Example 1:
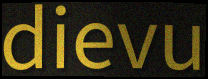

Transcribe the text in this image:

dievu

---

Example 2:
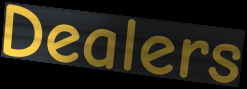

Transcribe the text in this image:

Dealers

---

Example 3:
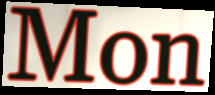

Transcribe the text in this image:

Mon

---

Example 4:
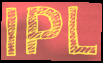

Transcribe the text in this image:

IPL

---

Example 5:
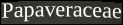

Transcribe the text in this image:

Papaveraceae